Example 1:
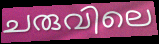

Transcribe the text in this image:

ചരുവിലെ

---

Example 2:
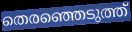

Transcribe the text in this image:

തെരഞ്ഞെടുത്ത്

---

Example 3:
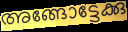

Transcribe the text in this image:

അങ്ങോട്ടേക്കു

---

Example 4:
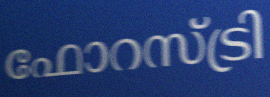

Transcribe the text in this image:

ഫോറസ്ട്രി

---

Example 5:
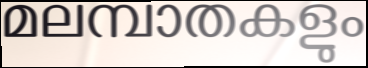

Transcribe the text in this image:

മലമ്പാതകളും